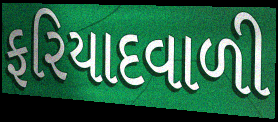
ફરિયાદવાળી